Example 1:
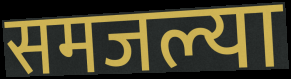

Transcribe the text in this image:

समजल्या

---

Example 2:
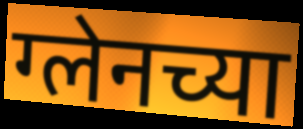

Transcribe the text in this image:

ग्लेनच्या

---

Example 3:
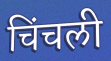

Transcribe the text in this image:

चिंचली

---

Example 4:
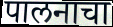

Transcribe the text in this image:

पालनाचा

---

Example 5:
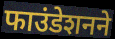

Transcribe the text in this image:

फाउंडेशनने